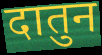
दातुन